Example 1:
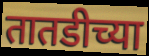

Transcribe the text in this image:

तातडीच्या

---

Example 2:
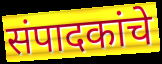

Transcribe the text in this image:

संपादकांचे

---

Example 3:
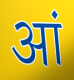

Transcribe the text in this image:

आं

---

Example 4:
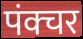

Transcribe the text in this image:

पंक्‍चर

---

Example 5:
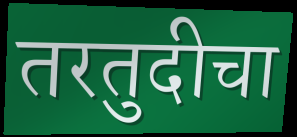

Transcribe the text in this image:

तरतुदीचा